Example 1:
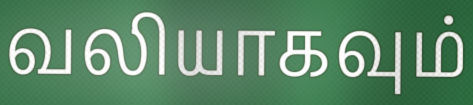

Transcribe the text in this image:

வலியாகவும்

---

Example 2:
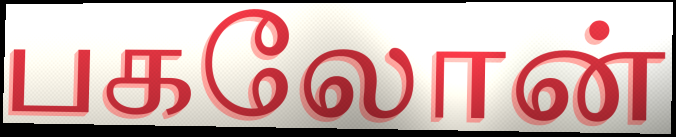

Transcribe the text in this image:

பகலோன்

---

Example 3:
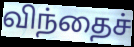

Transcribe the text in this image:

விந்தைச்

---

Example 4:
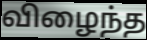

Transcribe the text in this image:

விழைந்த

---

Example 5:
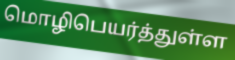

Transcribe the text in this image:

மொழிபெயர்த்துள்ள